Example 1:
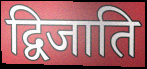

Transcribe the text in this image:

द्विजाति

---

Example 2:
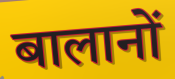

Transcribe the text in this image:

बालानों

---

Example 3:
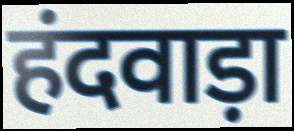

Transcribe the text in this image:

हंदवाड़ा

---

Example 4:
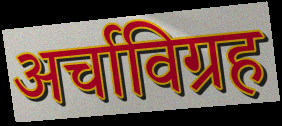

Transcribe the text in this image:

अर्चाविग्रह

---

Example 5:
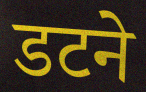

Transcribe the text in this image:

डटने